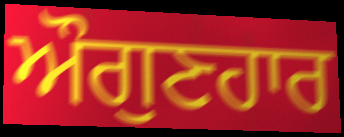
ਔਗੁਣਹਾਰ